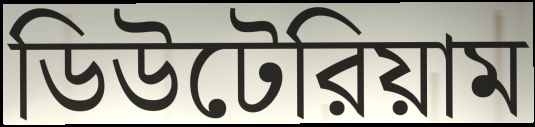
ডিউটেরিয়াম